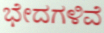
ಭೇದಗಳಿವೆ